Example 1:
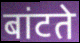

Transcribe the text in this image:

बांटते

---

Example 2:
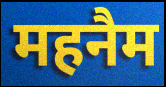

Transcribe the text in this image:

महनैम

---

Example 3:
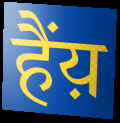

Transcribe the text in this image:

हैंय़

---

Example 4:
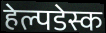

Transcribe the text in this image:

हेल्पडेस्क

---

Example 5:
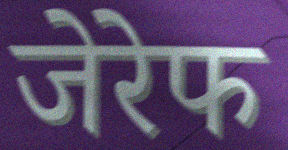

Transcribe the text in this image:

जेरेफ